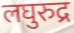
लघुरुद्र